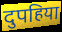
दुपहिया